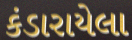
કંડારાયેલા